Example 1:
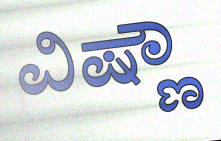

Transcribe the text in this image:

ವಿಷ್ಣೌ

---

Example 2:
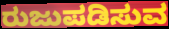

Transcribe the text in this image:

ರುಜುಪಡಿಸುವ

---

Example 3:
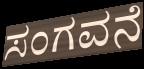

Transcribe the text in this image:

ಸಂಗವನೆ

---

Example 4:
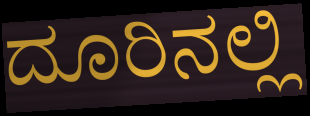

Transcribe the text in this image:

ದೂರಿನಲ್ಲಿ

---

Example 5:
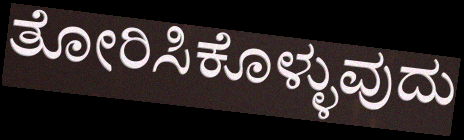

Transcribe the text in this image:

ತೋರಿಸಿಕೊಳ್ಳುವುದು